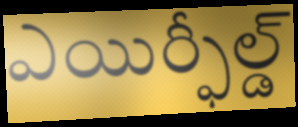
ఎయిర్ఫీల్డ్